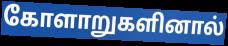
கோளாறுகளினால்